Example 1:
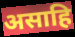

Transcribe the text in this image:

असाहि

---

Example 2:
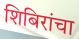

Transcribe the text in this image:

शिबिरांचा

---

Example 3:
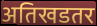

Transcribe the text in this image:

अतिखडतर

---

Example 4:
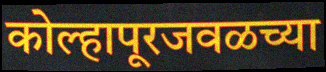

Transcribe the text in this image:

कोल्हापूरजवळच्या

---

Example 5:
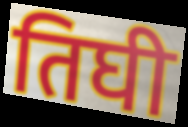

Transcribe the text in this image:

तिघी